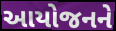
આયોજનને